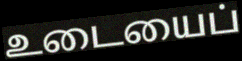
உடையைப்